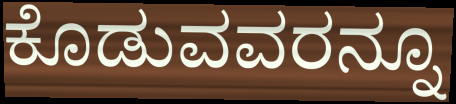
ಕೊಡುವವರನ್ನೂ